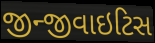
જીન્જીવાઇટિસ